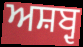
ਅਸ਼ਬ੍ਦ